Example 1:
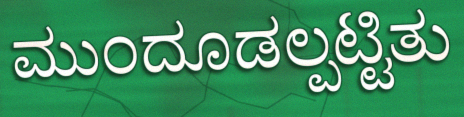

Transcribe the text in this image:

ಮುಂದೂಡಲ್ಪಟ್ಟಿತು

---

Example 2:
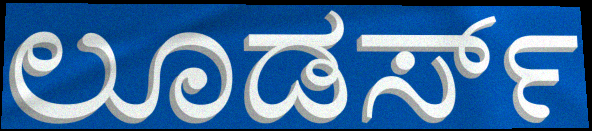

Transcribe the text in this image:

ಲೂಡರ್ಸ್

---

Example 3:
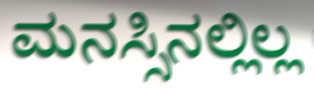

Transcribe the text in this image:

ಮನಸ್ಸಿನಲ್ಲಿಲ್ಲ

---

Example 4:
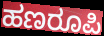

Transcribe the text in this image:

ಹಣರೂಪಿ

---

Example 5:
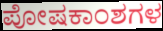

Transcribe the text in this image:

ಪೋಷಕಾಂಶಗಳ